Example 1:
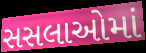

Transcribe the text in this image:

સસલાઓમાં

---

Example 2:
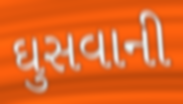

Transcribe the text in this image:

ઘુસવાની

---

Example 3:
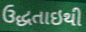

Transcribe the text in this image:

ઉદ્ધતાઇથી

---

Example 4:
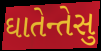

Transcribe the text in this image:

ઘાતેન્તેસુ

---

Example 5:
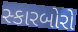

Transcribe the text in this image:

સ્કારબોરો